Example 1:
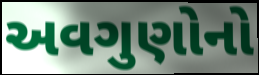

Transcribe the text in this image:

અવગુણોનો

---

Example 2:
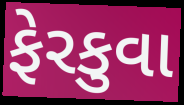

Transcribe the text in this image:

ફેરકુવા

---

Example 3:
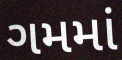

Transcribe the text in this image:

ગમમાં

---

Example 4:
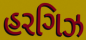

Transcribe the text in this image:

હરગિઝ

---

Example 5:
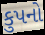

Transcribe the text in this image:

કુપનો